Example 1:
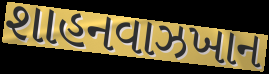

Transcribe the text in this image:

શાહનવાઝખાન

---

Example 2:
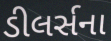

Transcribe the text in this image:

ડીલર્સના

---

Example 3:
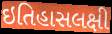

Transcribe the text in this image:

ઇતિહાસલક્ષી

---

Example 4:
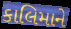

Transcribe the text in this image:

કાલિમાને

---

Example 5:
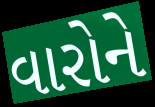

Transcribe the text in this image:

વારોને